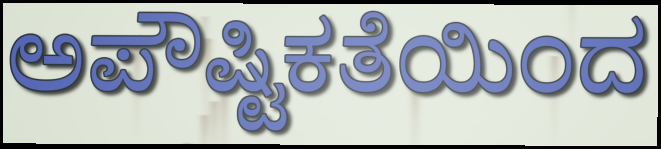
ಅಪೌಷ್ಟಿಕತೆಯಿಂದ